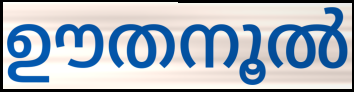
ഊതനൂൽ